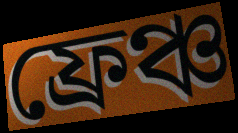
ফ্ৰেঞ্চ